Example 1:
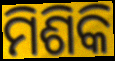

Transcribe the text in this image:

ମିଶିକି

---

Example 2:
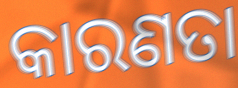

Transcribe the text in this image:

କାରଣତା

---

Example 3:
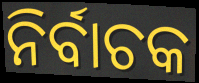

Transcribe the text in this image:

ନିର୍ବାଚକ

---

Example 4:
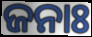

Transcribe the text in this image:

ଜନାଃ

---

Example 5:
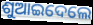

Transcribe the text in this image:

ଶୁଆଇଦେଲେ